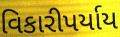
વિકારીપર્યાય